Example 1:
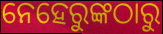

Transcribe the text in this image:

ନେହେରୁଙ୍କଠାରୁ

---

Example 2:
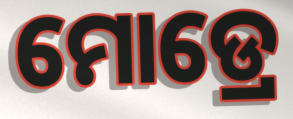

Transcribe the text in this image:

ମୋଡ୍ରେ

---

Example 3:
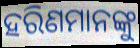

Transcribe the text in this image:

ହରିଣମାନଙ୍କୁ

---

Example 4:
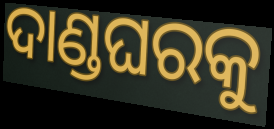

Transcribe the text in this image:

ଦାଣ୍ଡଘରକୁ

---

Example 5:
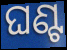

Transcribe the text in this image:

ଘଣ୍ଟ